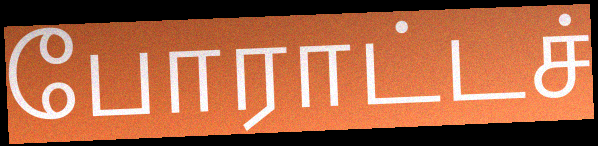
போராட்டச்